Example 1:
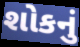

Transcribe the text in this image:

શોકનું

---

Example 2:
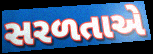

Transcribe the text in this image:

સરળતાએ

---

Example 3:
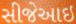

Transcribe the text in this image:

સીજેઆઇ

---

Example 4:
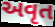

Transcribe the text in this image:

અવૃત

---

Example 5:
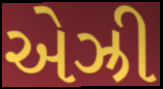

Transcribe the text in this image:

એઝ્રી